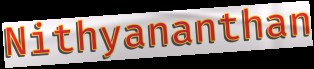
Nithyananthan